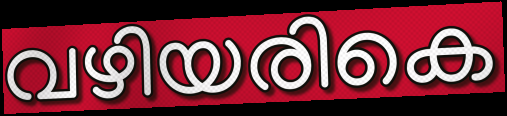
വഴിയരികെ